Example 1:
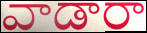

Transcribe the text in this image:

వాడారా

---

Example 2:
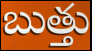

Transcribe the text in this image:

బుత్తు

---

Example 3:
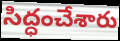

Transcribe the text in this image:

సిద్ధంచేశారు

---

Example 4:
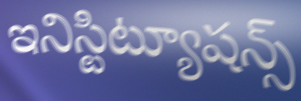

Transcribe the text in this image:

ఇనిస్టిట్యూషన్స్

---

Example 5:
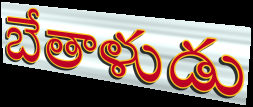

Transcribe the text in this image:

బేతాళుడు